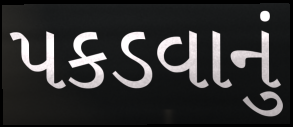
પકડવાનું